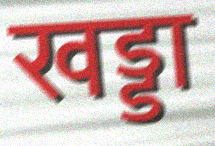
खड्डा